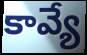
కావ్యే